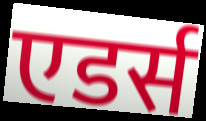
एडर्स